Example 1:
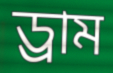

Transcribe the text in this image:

ড্ৰাম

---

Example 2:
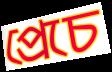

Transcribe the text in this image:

প্ৰেচে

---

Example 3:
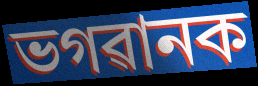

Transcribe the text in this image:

ভগৱানক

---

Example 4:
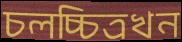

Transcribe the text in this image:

চলচ্চিত্ৰখন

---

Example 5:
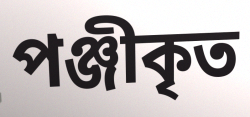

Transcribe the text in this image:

পঞ্জীকৃত